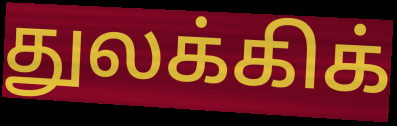
துலக்கிக்